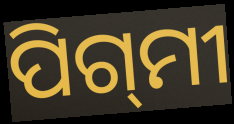
ପିଗ୍‌ମୀ